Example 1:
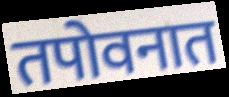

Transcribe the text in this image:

तपोवनात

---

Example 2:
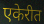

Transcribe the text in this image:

एकेरीत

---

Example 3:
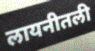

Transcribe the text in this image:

लायनीतली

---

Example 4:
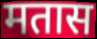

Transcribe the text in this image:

मतास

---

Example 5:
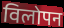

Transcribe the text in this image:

विलोपन